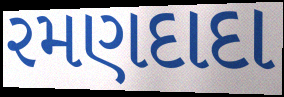
રમણદાદા